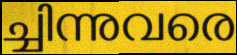
ച്ചിന്നുവരെ